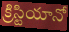
క్రిస్టియానో